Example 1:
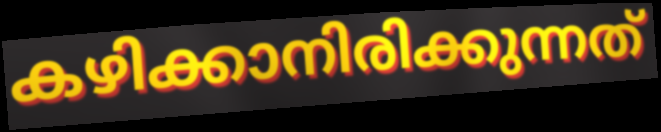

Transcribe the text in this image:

കഴിക്കാനിരിക്കുന്നത്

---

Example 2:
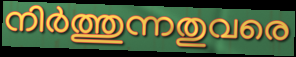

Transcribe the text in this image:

നിർത്തുന്നതുവരെ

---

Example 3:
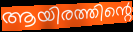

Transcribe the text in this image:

ആയിരത്തിന്റെ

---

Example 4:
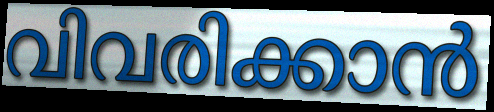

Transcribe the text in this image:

വിവരിക്കാൻ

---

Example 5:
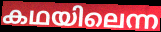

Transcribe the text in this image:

കഥയിലെന്ന